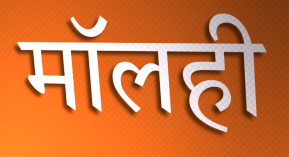
मॉलही